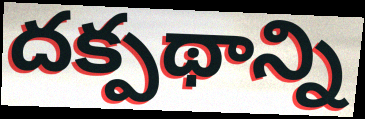
దక్పథాన్ని